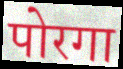
पोरगा